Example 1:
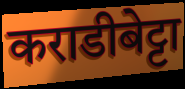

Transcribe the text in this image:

कराडीबेट्टा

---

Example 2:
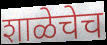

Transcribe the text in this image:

शाळेचेच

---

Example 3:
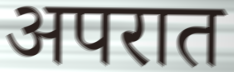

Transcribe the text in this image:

अपरात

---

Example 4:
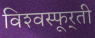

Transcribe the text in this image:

विश्वस्फूर्ती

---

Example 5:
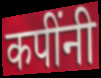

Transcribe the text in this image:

कपींनी